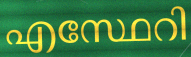
എസ്ഥേറി